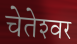
चेतेश्वर